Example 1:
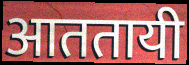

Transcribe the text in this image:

आततायी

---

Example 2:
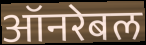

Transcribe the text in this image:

ऑनरेबल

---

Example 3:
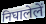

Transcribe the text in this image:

निघालेलें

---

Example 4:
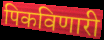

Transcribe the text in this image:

पिकविणारी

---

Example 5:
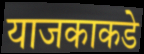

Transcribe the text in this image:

याजकाकडे